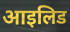
आइलिड